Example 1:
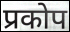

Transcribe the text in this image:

प्रकोप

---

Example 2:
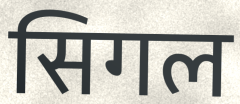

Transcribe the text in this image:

सिगल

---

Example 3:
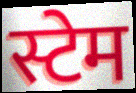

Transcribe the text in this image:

स्टेम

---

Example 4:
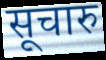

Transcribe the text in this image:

सूचारु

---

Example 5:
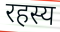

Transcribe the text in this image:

रहस्य